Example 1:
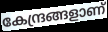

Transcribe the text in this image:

കേന്ദ്രങ്ങളാണ്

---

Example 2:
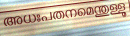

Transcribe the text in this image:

അധഃപതനമെന്തുള്ളൂ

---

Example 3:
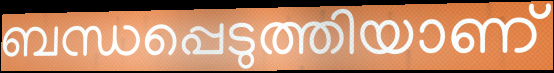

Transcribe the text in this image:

ബന്ധപ്പെടുത്തിയാണ്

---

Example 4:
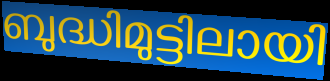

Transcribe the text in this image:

ബുദ്ധിമുട്ടിലായി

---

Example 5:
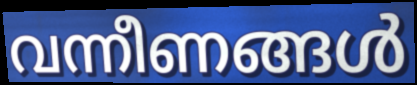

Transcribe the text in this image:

വന്നീണങ്ങൾ